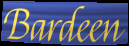
Bardeen